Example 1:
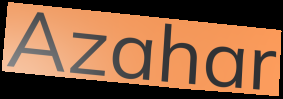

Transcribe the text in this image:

Azahar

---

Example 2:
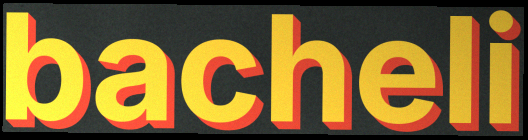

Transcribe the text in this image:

bacheli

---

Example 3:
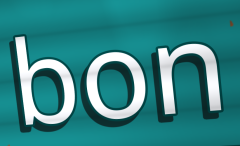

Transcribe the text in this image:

bon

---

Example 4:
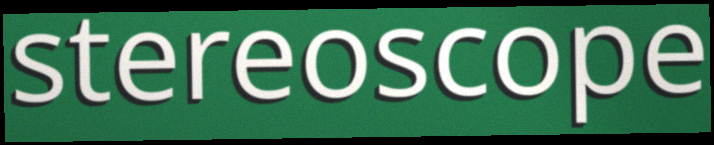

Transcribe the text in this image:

stereoscope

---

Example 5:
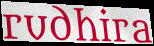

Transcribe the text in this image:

rudhira